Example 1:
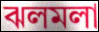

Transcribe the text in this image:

ঝলমলা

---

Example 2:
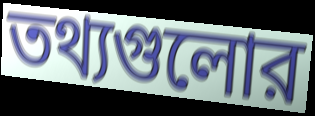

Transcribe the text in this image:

তথ্যগুলোর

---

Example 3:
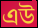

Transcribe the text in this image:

এউ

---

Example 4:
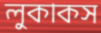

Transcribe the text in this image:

লুকাকস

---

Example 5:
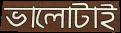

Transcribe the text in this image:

ভালোটাই